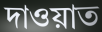
দাওয়াত